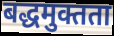
बद्धमुक्तता